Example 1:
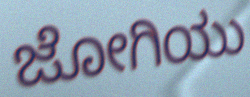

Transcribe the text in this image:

ಜೋಗಿಯು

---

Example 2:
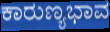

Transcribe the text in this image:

ಕಾರುಣ್ಯಭಾವ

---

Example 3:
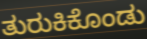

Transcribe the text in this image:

ತುರುಕಿಕೊಂಡು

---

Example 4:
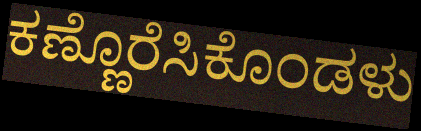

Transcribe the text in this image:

ಕಣ್ಣೊರೆಸಿಕೊಂಡಳು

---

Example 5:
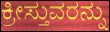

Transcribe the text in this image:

ಕ್ರೀಸ್ತುವರನ್ನು